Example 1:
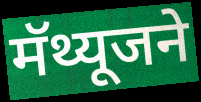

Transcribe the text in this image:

मॅथ्यूजने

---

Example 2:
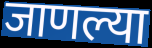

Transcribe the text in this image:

जाणल्या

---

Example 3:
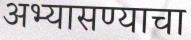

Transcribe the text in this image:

अभ्यासण्याचा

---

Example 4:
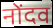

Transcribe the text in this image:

नोंदव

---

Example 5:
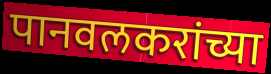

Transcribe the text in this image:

पानवलकरांच्या